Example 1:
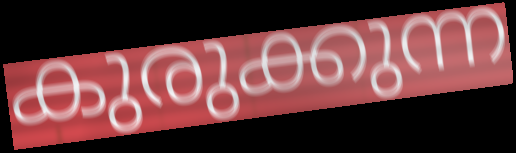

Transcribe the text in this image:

കുരുക്കുന്ന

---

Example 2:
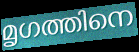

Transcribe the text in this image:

മൃഗത്തിനെ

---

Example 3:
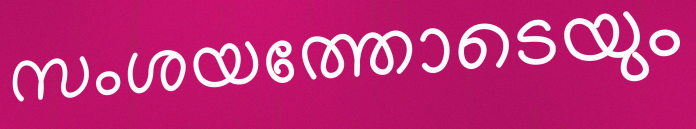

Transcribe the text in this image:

സംശയത്തോടെയും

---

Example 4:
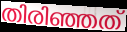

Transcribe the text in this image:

തിരിഞ്ഞത്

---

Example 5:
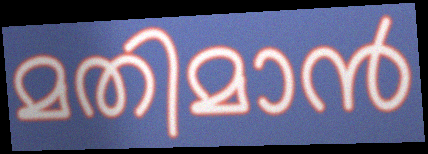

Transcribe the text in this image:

മതിമാൻ